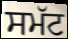
ਸਮੱਟ